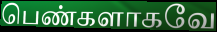
பெண்களாகவே